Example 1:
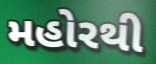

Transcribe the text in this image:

મહોરથી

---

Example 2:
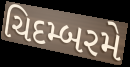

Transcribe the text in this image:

ચિદમ્બરમે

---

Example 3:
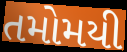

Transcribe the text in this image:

તમોમયી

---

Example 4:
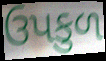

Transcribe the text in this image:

ઉપકુળ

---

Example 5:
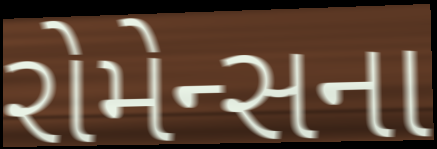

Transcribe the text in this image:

રોમેન્સના